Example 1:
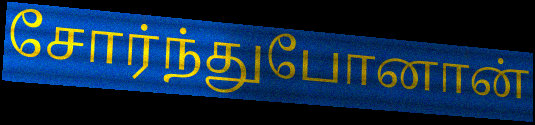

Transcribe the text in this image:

சோர்ந்துபோனான்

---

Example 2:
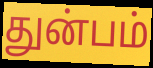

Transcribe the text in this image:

துன்பம்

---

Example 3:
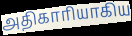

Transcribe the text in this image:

அதிகாரியாகிய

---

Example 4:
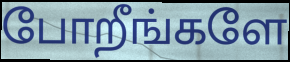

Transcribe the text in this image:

போறீங்களே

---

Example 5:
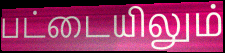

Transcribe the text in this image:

பட்டையிலும்